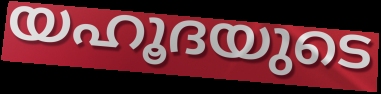
യഹൂദയുടെ